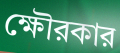
ক্ষৌরকার